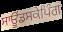
ਸਾਊਂਡਸਕੇਪਿੰਗ